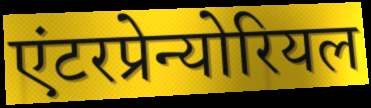
एंटरप्रेन्योरियल